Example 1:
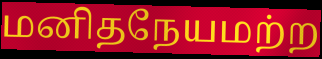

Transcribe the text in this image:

மனிதநேயமற்ற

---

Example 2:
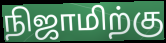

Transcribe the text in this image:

நிஜாமிற்கு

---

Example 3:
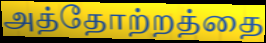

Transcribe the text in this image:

அத்தோற்றத்தை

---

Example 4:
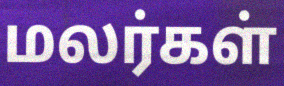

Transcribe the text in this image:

மலர்கள்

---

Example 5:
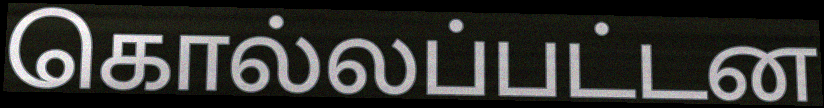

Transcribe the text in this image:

கொல்லப்பட்டன